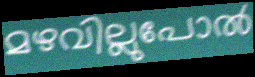
മഴവില്ലുപോൽ